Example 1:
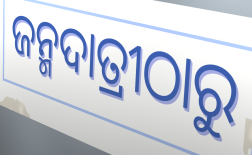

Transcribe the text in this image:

ଜନ୍ମଦାତ୍ରୀଠାରୁ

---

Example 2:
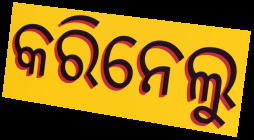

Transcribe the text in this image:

କରିନେଲୁ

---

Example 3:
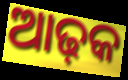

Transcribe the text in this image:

ଆଢ଼କ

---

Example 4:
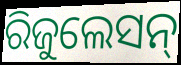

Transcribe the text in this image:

ରିଜୁଲେସନ୍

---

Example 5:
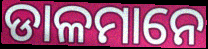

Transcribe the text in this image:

ଡାଳମାନେ